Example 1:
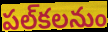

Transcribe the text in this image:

పల్‌కలనుం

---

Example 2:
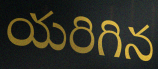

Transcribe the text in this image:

యరిగిన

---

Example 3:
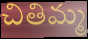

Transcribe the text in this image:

చితిమ్మ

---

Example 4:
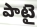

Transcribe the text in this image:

పాటై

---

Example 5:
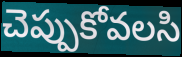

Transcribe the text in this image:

చెప్పుకోవలసి